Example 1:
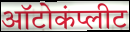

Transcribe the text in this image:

ऑटोकंप्लीट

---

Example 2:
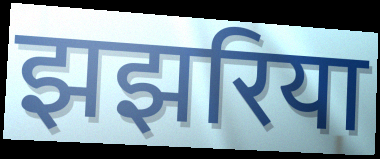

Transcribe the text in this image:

झझरिया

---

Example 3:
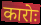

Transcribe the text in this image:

कारोः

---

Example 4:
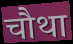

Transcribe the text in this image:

चौथा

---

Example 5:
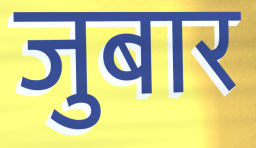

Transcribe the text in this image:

जुबार